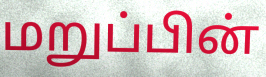
மறுப்பின்